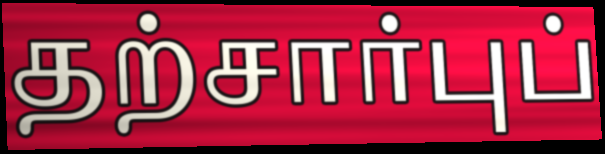
தற்சார்புப்